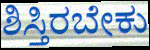
ಶಿಸ್ತಿರಬೇಕು